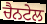
ਚੈਨਟੇਲ